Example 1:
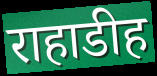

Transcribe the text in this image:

राहाडीह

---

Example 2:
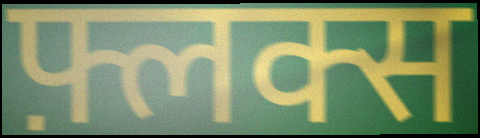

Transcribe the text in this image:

फ़्लक्स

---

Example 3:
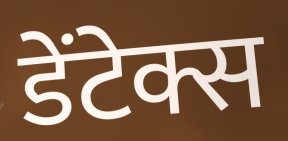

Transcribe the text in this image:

डेंटेक्स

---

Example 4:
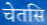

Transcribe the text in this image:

चेतसि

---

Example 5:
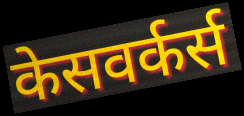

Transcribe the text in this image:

केसवर्कर्स